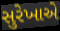
સુરેખાએ